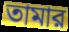
তামার